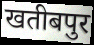
खतीबपुर